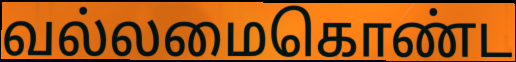
வல்லமைகொண்ட